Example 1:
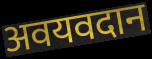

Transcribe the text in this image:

अवयवदान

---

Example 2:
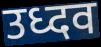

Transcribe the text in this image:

उध्दव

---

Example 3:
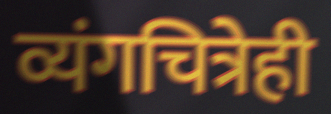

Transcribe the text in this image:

व्यंगचित्रेही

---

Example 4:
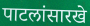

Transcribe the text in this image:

पाटलांसारखे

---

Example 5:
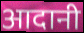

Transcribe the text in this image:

आदानी